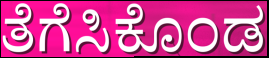
ತೆಗೆಸಿಕೊಂಡ